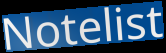
Notelist